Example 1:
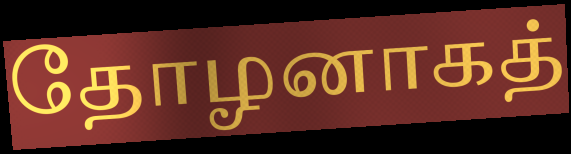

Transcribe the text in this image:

தோழனாகத்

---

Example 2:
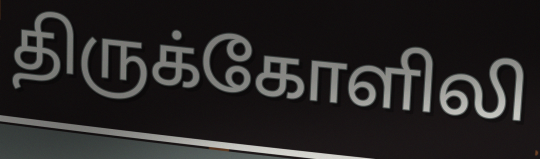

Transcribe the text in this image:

திருக்கோளிலி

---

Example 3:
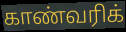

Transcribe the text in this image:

காண்வரிக்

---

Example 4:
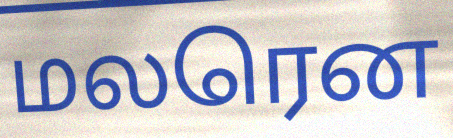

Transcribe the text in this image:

மலரென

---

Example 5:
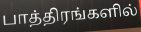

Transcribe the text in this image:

பாத்திரங்களில்